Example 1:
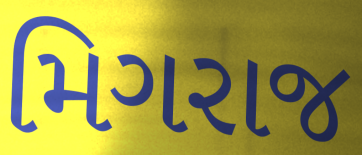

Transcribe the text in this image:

મિગરાજ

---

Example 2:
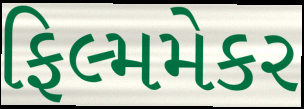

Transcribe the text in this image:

ફિલ્મમેકર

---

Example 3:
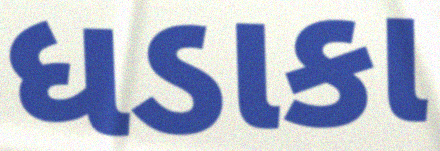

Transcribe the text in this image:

ધડાકા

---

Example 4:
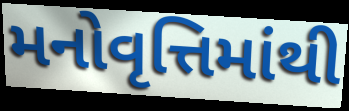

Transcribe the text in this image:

મનોવૃત્તિમાંથી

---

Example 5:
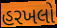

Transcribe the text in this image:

હરખલો